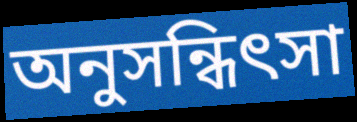
অনুসন্ধিৎসা